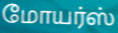
மோயர்ஸ்